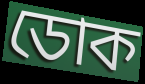
ডোক